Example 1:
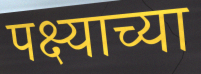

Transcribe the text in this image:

पक्ष्याच्या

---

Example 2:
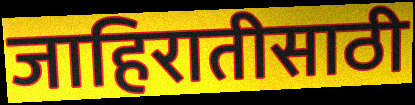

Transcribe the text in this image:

जाहिरातीसाठी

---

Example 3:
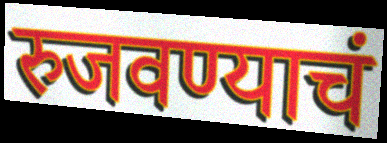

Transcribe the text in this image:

रुजवण्याचं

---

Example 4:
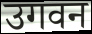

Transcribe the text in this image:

उगवन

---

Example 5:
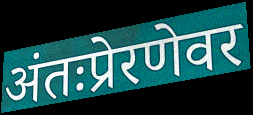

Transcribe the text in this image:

अंतःप्रेरणेवर